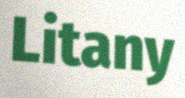
Litany